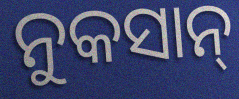
ନୁକସାନ୍